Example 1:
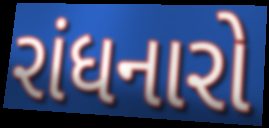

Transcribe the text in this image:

રાંધનારો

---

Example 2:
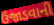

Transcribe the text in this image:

ઉજાડવાની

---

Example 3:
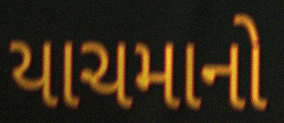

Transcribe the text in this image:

યાચમાનો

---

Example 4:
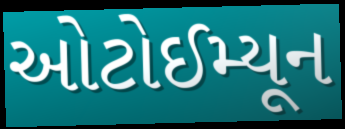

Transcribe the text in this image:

ઓટોઈમ્યૂન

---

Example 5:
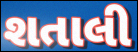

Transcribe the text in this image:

શતાલી